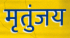
मृतुंजय